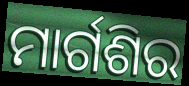
ମାର୍ଗଶିର